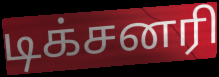
டிக்சனரி